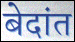
बेदांत